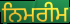
ਨਿਮਰੀਮ